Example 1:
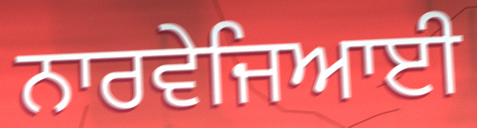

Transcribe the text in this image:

ਨਾਰਵੇਜਿਆਈ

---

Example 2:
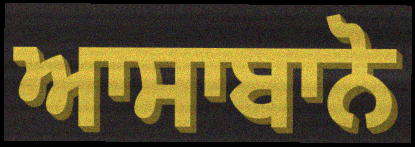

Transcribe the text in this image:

ਆਸਾਬਾਨੋ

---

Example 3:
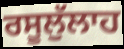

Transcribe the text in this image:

ਰਸੂਲੁੱਲਾਹ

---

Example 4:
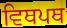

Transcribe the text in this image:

ਵਿਥਪਥ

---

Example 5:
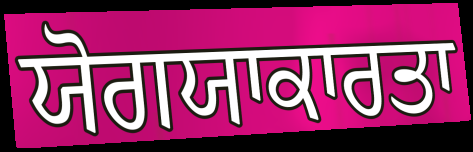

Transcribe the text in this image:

ਯੋਗਯਾਕਾਰਤਾ